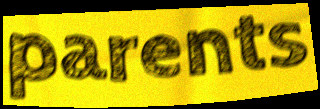
parents